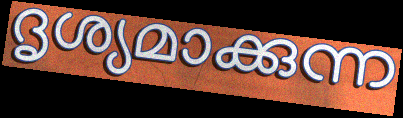
ദൃശ്യമാക്കുന്ന